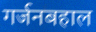
गर्जनबहाल